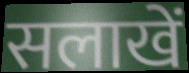
सलाखें